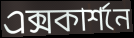
এক্সকার্শনে